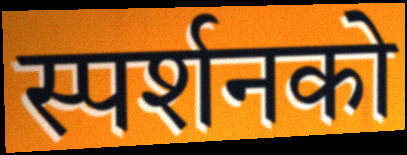
स्पर्शनको